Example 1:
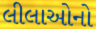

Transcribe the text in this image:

લીલાઓનો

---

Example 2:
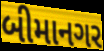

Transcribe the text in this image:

બીમાનગર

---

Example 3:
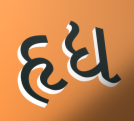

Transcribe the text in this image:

હૃદ્ય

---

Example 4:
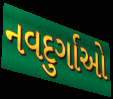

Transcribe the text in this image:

નવદુર્ગાઓ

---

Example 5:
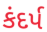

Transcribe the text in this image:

કંદર્પ